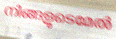
നിങ്ങളുടെമേൽ